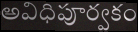
అవిధిపూర్వకం